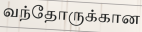
வந்தோருக்கான